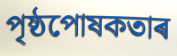
পৃষ্ঠপোষকতাৰ